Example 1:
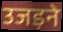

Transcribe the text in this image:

उजड़ने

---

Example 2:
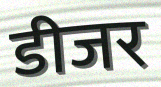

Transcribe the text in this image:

डीजर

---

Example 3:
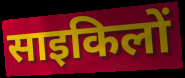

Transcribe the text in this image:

साइकिलों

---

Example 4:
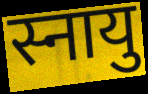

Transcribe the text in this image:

स्नायु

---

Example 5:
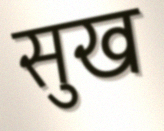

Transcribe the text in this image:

सुख